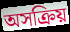
অসক্রিয়